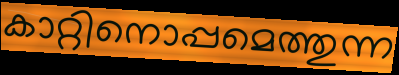
കാറ്റിനൊപ്പമെത്തുന്ന